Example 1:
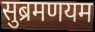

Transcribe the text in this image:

सुब्रमणयम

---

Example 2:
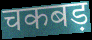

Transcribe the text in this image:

चकबड़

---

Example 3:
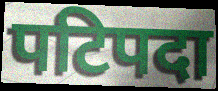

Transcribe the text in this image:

पटिपदा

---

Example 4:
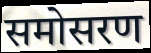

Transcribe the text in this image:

समोसरण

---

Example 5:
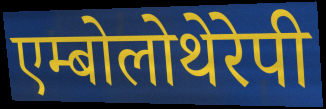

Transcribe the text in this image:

एम्बोलोथेरेपी